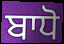
ਬਾਧੋ